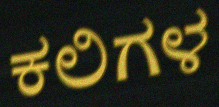
ಕಲಿಗಳ